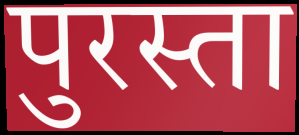
पुरस्ता